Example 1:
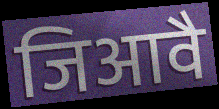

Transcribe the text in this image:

जिआवै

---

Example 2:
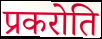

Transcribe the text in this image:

प्रकरोति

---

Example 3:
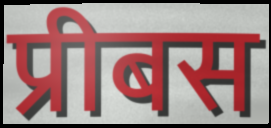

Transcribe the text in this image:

प्रीबस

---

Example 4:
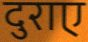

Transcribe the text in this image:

दुराए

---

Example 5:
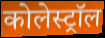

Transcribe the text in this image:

कोलेस्‍ट्रॉल